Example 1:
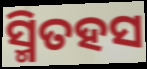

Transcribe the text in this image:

ସ୍ମିତହସ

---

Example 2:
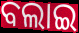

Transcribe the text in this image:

ବଲାଇ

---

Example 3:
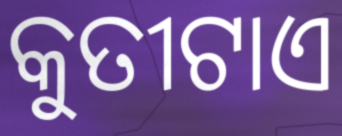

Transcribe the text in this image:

କୁତୀଟାଏ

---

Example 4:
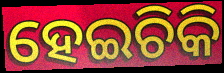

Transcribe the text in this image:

ହେଇଚିକି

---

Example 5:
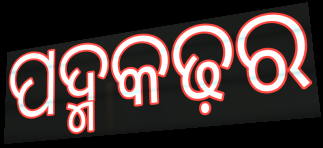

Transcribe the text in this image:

ପଦ୍ମକଢ଼ର